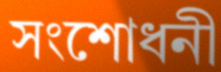
সংশোধনী